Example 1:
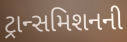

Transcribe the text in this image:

ટ્રાન્સમિશનની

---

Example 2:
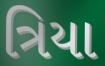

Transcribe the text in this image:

ત્રિયા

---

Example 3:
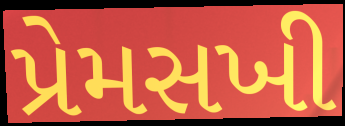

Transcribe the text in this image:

પ્રેમસખી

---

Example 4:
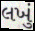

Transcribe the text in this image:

લખું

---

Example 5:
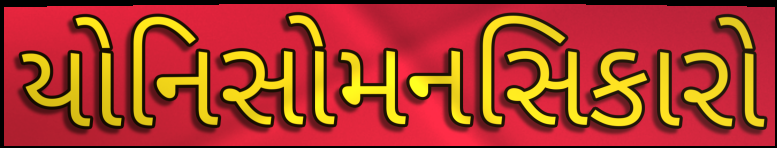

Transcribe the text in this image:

યોનિસોમનસિકારો